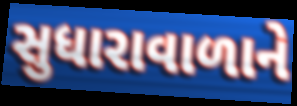
સુધારાવાળાને